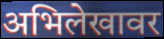
अभिलेखावर